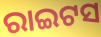
ରାଇଟସ